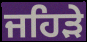
ਜਹਿੜੇ